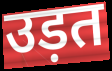
उड़त